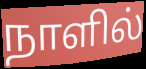
நாளில்